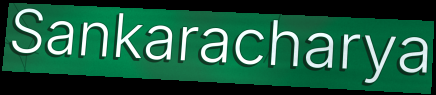
Sankaracharya